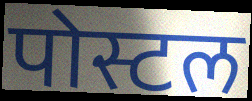
पोस्टल